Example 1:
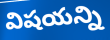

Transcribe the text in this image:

విషయన్ని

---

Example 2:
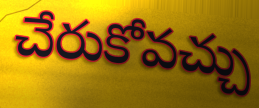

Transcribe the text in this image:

చేరుకోవచ్చు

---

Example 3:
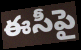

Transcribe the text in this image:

ఈసీపై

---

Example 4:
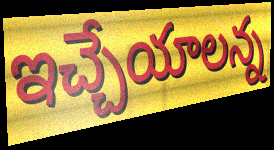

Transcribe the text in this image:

ఇచ్చేయాలన్న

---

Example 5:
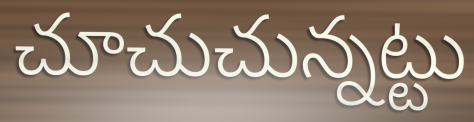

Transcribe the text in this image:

చూచుచున్నట్టు